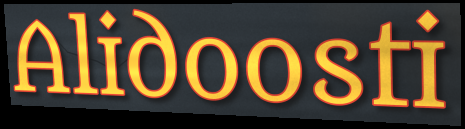
Alidoosti